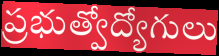
ప్రభుత్వోద్యోగులు